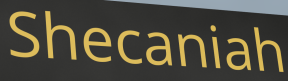
Shecaniah